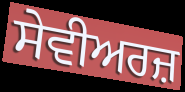
ਸੇਵੀਅਰਜ਼